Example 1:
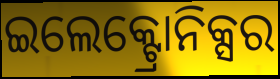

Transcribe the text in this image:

ଇଲେକ୍ଟ୍ରୋନିକ୍ସର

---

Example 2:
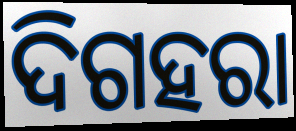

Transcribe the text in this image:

ଦିଗହରା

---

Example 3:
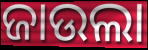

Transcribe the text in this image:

ଜାଉଲା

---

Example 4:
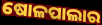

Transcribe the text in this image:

ଷୋଳପାଲାର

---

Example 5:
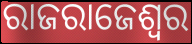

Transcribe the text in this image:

ରାଜରାଜେଶ୍ଵର